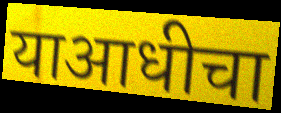
याआधीचा